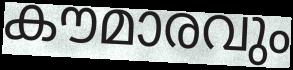
കൗമാരവും